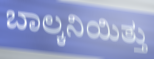
ಬಾಲ್ಕನಿಯಿತ್ತು